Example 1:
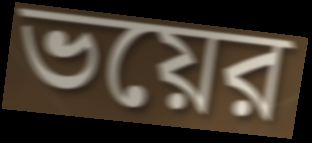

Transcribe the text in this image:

ভয়ের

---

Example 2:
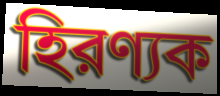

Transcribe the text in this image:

হিরণ্যক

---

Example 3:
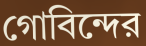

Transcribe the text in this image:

গোবিন্দের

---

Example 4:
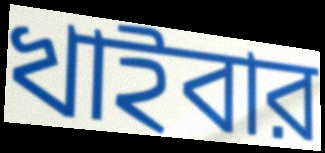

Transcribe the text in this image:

খাইবার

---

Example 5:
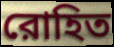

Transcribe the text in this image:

রোহিত